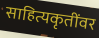
साहित्यकृतींवर